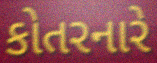
કોતરનારે